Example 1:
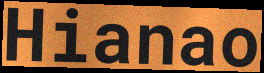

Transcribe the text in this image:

Hianao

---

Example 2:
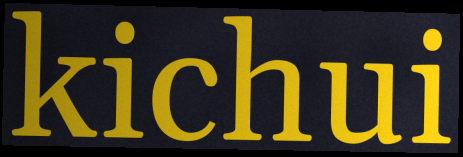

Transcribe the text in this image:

kichui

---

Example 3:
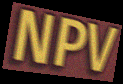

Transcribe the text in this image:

NPV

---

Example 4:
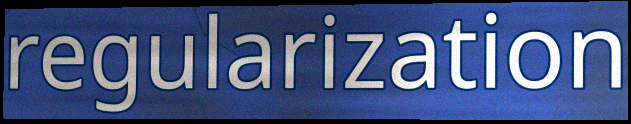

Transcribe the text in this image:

regularization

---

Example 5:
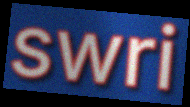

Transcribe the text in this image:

swri